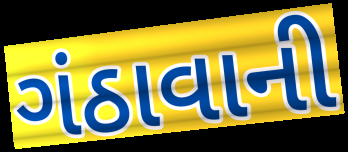
ગંઠાવાની